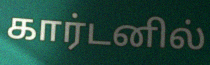
கார்டனில்